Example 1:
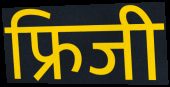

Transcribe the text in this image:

फ्रिजी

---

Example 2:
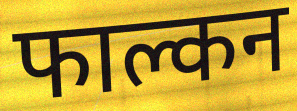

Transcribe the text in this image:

फाल्कन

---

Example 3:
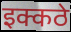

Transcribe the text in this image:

इक्कठे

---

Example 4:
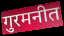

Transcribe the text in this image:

गुरमनीत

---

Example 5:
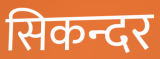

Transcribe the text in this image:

सिकन्दर